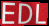
EDL